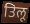
उिलू